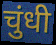
चुंधी